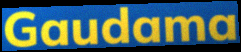
Gaudama